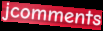
jcomments